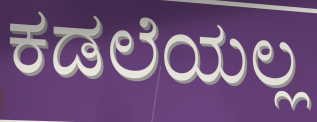
ಕಡಲೆಯಲ್ಲ